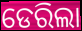
ଡେରିଲା